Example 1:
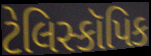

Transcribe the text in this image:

ટેલિસ્કૉપિક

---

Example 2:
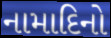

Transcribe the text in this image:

નામાદિનો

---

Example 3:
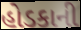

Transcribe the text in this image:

હોડકાની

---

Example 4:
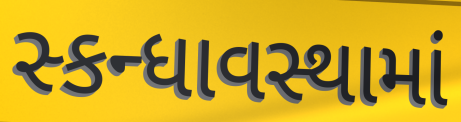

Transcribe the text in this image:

સ્કન્ધાવસ્થામાં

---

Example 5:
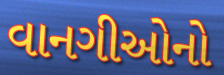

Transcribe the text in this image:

વાનગીઓનો